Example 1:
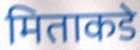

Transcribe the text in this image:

मिताकडे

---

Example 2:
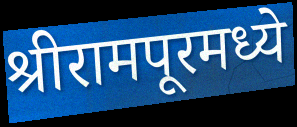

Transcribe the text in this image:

श्रीरामपूरमध्ये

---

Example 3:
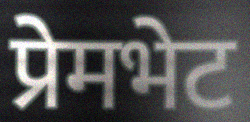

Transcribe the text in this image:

प्रेमभेट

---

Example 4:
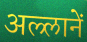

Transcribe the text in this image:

अल्लानें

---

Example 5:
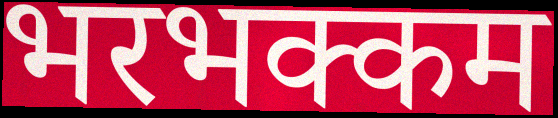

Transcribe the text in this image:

भरभक्कम